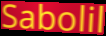
Sabolil